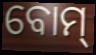
ବୋମ୍